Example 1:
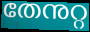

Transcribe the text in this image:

തേനുറ്റ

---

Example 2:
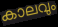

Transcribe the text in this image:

കാലവും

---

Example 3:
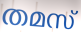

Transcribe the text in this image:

തമസ്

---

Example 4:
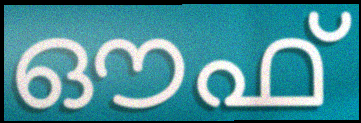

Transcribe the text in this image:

ഔഫ്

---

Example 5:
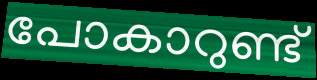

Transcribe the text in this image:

പോകാറുണ്ട്